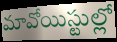
మావోయిస్టుల్లో